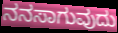
ನನಸಾಗುವುದು